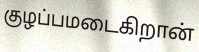
குழப்பமடைகிறான்